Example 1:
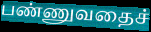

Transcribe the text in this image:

பண்ணுவதைச்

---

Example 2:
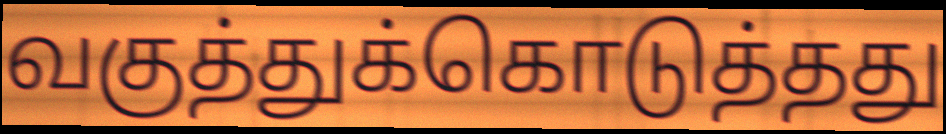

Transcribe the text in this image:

வகுத்துக்கொடுத்தது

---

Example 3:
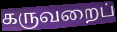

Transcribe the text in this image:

கருவறைப்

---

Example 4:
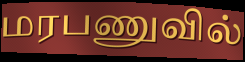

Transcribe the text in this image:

மரபணுவில்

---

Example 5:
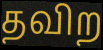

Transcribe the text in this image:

தவிற